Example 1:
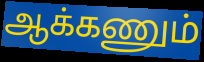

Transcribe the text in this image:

ஆக்கணும்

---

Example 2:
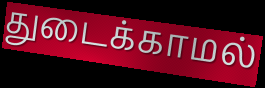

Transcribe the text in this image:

துடைக்காமல்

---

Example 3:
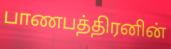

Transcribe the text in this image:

பாணபத்திரனின்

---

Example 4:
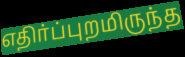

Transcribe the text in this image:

எதிர்ப்புறமிருந்த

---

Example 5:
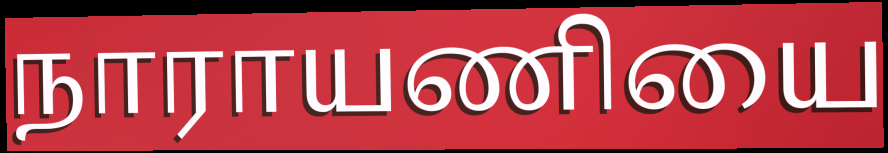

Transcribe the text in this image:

நாராயணியை